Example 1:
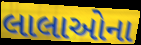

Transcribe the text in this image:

લાલાઓના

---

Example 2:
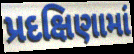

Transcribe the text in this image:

પ્રદક્ષિણામાં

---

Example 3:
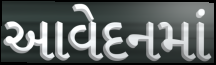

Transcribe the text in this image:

આવેદનમાં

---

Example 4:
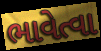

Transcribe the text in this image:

ભાવેત્વા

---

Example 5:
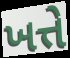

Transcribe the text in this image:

ખત્તે